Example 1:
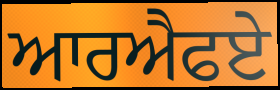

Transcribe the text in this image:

ਆਰਐਫਏ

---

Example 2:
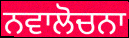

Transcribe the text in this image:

ਨਵਾਲੋਚਨਾ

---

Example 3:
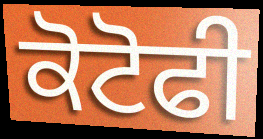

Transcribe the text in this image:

ਕੋਟੋਫੀ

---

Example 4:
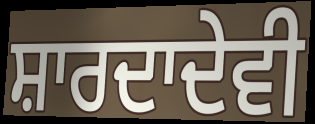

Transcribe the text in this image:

ਸ਼ਾਰਦਾਦੇਵੀ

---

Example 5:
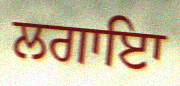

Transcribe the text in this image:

ਲਗਾਇਾ